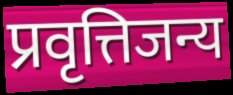
प्रवृत्तिजन्य